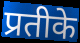
प्रतीके